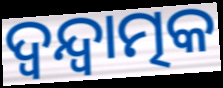
ଦ୍ଵନ୍ଦ୍ଵାତ୍ମକ